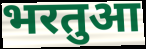
भरतुआ